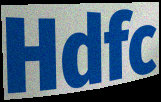
Hdfc